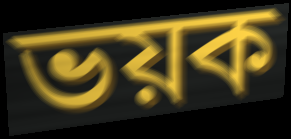
ভয়ক